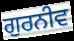
ਗੁਰਨੀਵ